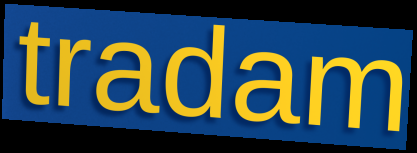
tradam